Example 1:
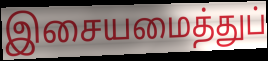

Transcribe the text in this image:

இசையமைத்துப்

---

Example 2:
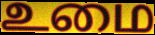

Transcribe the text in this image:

உமை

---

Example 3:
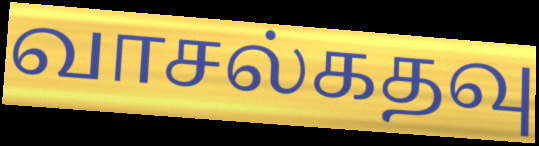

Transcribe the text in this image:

வாசல்கதவு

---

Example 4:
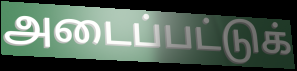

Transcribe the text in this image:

அடைப்பட்டுக்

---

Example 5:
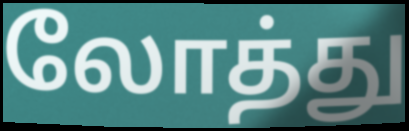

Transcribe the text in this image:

லோத்து